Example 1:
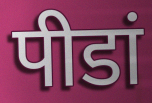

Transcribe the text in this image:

पीडां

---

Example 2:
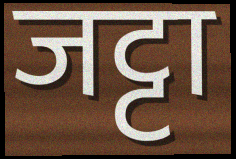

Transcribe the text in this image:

जट्टा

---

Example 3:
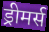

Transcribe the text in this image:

ड्रीमर्स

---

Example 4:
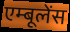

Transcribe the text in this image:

एम्बूलेंस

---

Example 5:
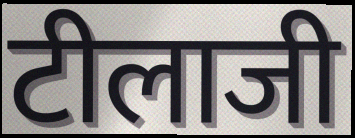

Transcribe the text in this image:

टीलाजी